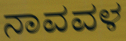
ನಾವವಳ